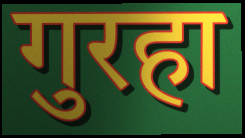
गुरहा